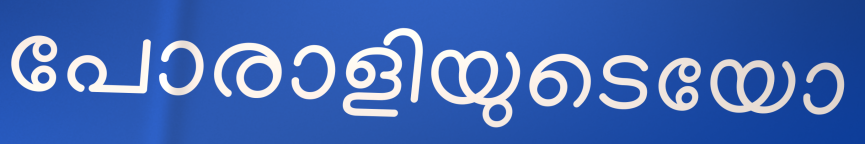
പോരാളിയുടെയോ